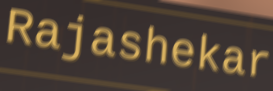
Rajashekar